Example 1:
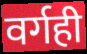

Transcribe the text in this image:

वर्गही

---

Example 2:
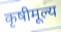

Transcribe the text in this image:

कृषीमूल्य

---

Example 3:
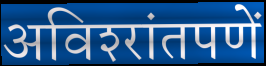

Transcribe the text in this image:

अविश्रांतपणें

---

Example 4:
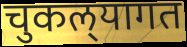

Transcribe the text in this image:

चुकल्यागत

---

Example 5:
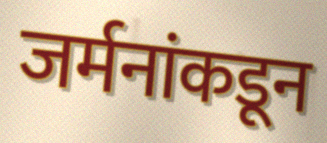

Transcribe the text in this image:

जर्मनांकडून